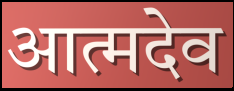
आत्मदेव